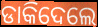
ଡାକିଦେଲେ